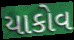
યાકોવ